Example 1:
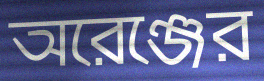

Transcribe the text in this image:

অরেঞ্জের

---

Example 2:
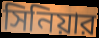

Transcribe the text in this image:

সিনিয়ার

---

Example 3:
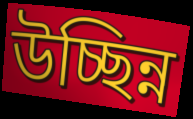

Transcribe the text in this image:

উচ্ছিন্ন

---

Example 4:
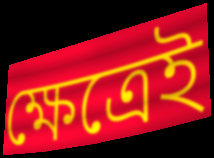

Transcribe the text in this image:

ক্ষেত্রেই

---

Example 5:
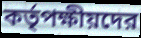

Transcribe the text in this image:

কর্তৃপক্ষীয়দের